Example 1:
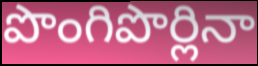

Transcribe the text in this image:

పొంగిపొర్లినా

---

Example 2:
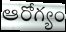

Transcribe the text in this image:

ఆరోగ్యం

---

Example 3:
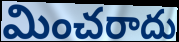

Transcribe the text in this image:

మించరాదు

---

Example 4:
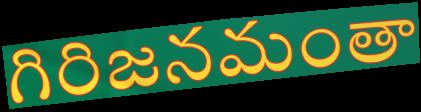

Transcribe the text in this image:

గిరిజనమంతా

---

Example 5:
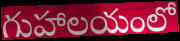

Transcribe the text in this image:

గుహాలయంలో